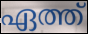
ഏത്ത്